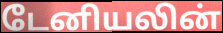
டேனியலின்